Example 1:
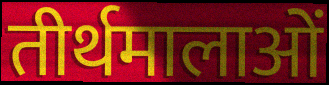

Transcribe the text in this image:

तीर्थमालाओं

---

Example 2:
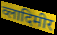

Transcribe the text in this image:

व्‍लादिमीर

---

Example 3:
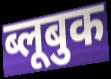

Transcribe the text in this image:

ब्लूबुक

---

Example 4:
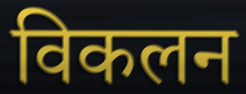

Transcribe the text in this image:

विकलन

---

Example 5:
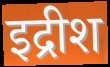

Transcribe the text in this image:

इद्रीश